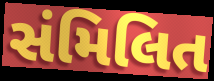
સંમિલિત